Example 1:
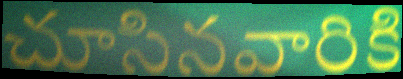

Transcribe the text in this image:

చూసినవారికి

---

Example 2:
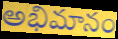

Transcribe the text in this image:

అభిమానం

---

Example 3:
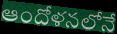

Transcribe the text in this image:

ఆందోళనలోనే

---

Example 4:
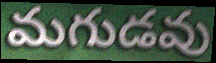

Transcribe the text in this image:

మగుడవు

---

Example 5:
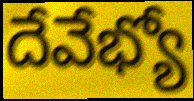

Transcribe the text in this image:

దేవేభ్యో